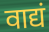
वाद्यं